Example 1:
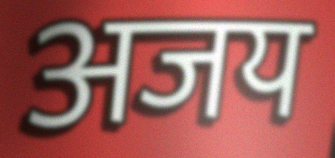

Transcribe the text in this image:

अजय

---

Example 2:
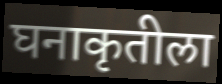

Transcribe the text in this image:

घनाकृतीला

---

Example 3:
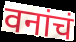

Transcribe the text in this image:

वनांचं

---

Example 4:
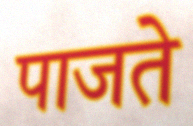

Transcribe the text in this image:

पाजते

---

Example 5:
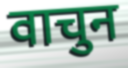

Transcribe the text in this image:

वाचुन